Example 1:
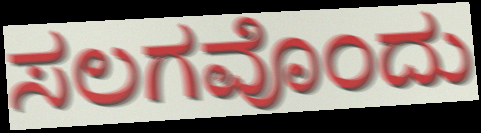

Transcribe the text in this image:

ಸಲಗವೊಂದು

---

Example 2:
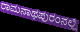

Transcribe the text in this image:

ರಾಮನಾಥಪುರಂನಲ್ಲಿ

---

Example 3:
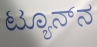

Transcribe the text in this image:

ಟ್ಯೂನ್‌ನ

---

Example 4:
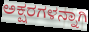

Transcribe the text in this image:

ಅಕ್ಷರಗಳನ್ನಾಗಿ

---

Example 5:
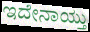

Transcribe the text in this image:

ಇದೇನಾಯ್ತು